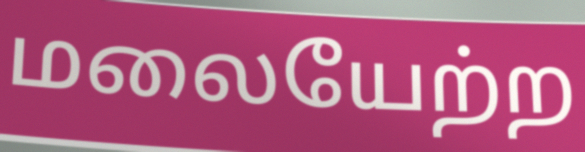
மலையேற்ற